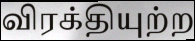
விரக்தியுற்ற